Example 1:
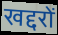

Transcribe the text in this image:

खद्दरों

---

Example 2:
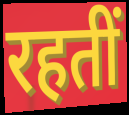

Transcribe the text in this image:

रहतीं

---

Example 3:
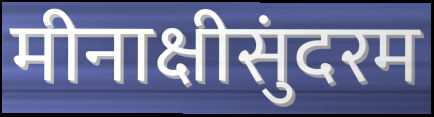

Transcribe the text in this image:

मीनाक्षीसुंदरम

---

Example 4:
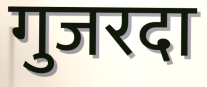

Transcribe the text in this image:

गुजरदा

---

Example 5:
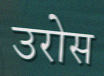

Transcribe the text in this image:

उरोस